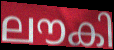
ലൗകി